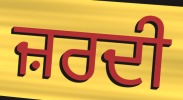
ਜ਼ਰਦੀ